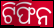
ଟିଫିନ